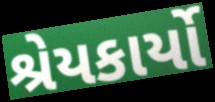
શ્રેયકાર્યો